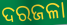
ଦରଜଳା